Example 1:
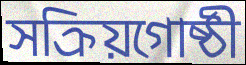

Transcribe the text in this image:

সক্রিয়গোষ্ঠী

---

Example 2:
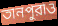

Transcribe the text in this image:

তানপুরাও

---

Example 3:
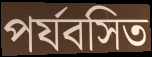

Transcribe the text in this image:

পর্যবসিত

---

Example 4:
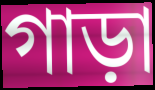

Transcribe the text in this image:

গাড়া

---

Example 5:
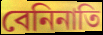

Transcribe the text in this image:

বেনিনাতি